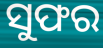
ସୁଫର